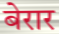
बेरार